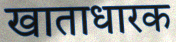
खाताधारक